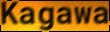
Kagawa